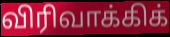
விரிவாக்கிக்